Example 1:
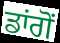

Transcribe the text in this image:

ਡਾਂਗੋਂ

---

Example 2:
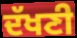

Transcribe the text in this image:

ਦੱਖਣੀ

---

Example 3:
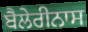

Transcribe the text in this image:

ਬੈਲੇਰੀਨਾਸ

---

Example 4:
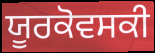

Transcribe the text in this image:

ਯੂਰਕੋਵਸਕੀ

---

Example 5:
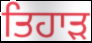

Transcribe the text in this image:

ਤਿਹਾੜ